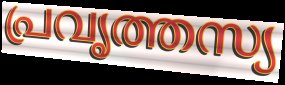
പ്രവൃത്തസ്യ